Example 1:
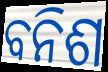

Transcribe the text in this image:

ବନିଶ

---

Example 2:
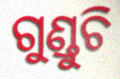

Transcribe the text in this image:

ଗୁଣ୍ଡୁଚି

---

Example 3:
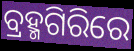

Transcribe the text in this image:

ବ୍ରହ୍ମଗିରିରେ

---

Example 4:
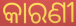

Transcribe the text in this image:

କାରଣୀ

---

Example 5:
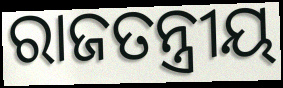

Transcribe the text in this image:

ରାଜତନ୍ତ୍ରୀୟ